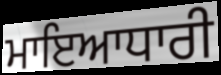
ਮਾਇਆਧਾਰੀ